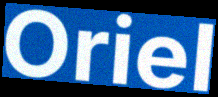
Oriel